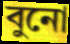
বুনো